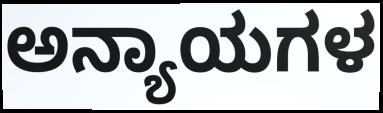
ಅನ್ಯಾಯಗಳ